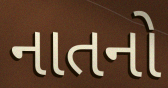
નાતનો